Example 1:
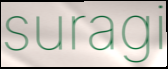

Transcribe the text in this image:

suragi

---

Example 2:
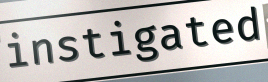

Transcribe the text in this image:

instigated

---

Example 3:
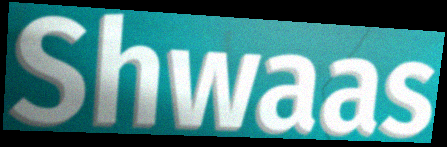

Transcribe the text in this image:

Shwaas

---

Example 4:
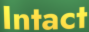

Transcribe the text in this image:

Intact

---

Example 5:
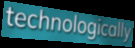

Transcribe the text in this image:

technologically